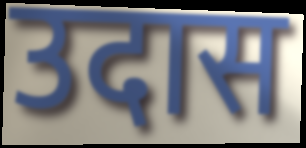
उदास